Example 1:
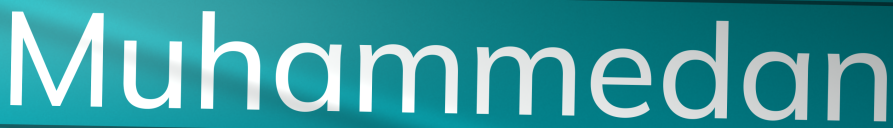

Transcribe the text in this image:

Muhammedan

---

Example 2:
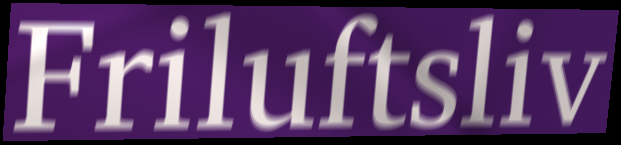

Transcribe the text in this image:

Friluftsliv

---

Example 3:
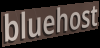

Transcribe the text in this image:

bluehost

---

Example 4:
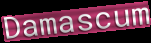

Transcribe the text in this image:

Damascum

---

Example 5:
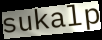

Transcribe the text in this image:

sukalp